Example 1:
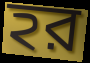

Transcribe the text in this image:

হর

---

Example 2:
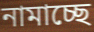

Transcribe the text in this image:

নামাচ্ছে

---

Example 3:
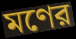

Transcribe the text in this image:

মণের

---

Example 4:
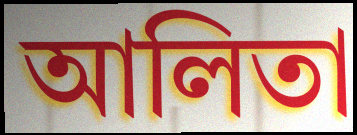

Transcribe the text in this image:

আলিতা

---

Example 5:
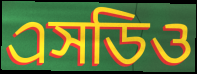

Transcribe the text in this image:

এসডিও